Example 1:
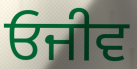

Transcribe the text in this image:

ਓਜੀਵ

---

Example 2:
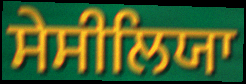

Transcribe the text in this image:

ਸੇਸੀਲਿਯਾ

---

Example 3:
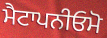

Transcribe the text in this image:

ਮੈਟਾਪਨੀਓਮੋ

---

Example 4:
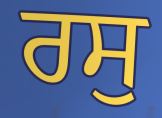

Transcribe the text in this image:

ਰਸੁ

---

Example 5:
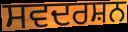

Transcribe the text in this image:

ਸਵਦਰਸ਼ਨ